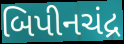
બિપીનચંદ્ર